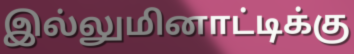
இல்லுமினாட்டிக்கு